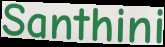
Santhini